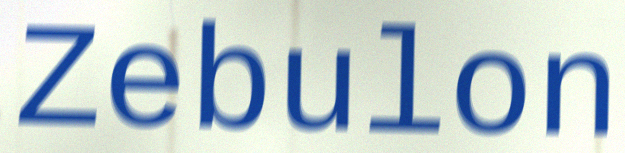
Zebulon